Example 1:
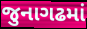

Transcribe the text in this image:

જુનાગઢમાં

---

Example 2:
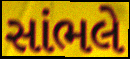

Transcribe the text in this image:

સાંભલે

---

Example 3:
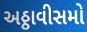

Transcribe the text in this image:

અઠ્ઠાવીસમો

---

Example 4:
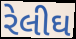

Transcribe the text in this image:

રેલીઘ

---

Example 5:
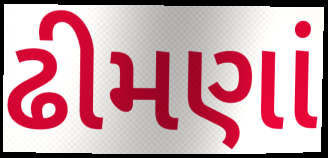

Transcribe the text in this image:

ઢીમણાં